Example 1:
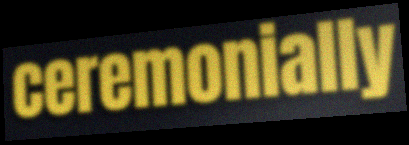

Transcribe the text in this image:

ceremonially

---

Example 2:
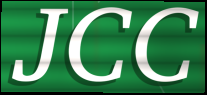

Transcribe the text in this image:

JCC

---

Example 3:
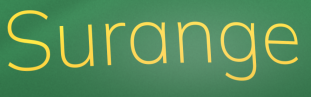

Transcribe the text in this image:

Surange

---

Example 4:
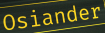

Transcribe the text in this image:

Osiander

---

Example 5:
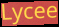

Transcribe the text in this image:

Lycee